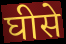
घीसे